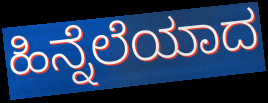
ಹಿನ್ನೆಲೆಯಾದ